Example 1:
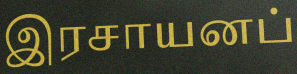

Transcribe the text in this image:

இரசாயனப்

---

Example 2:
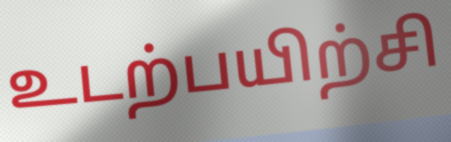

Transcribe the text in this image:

உடற்பயிற்சி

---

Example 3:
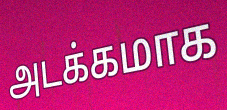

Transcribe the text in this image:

அடக்கமாக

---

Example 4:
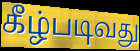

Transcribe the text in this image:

கீழ்படிவது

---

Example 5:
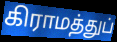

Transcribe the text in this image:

கிராமத்துப்